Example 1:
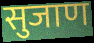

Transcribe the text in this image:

सुजाण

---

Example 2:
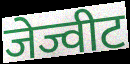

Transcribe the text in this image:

जेज्वीट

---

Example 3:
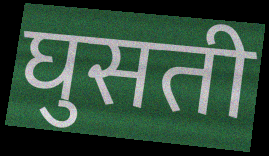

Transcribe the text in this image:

घुसती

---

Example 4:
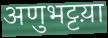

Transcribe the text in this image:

अणुभट्टय़ा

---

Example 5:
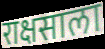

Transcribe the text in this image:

राक्षसाला